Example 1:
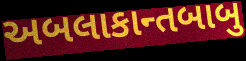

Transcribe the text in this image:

અબલાકાન્તબાબુ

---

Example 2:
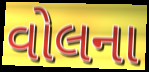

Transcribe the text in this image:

વોલના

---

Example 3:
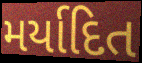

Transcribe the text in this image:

મર્યાદિત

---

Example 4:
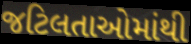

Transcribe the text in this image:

જટિલતાઓમાંથી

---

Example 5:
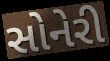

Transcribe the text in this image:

સોનેરી